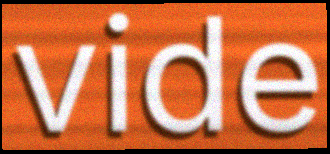
vide